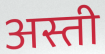
अस्ती